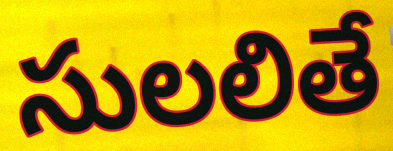
సులలితే